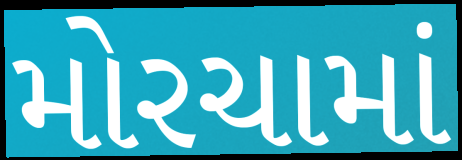
મોરચામાં